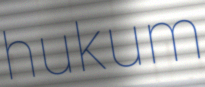
hukum